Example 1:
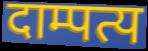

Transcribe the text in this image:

दाम्पत्य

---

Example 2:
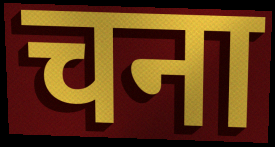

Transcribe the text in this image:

चना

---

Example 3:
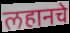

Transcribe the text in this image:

लहानचे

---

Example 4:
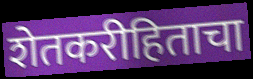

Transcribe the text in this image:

शेतकरीहिताचा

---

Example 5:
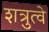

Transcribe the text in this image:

शत्रुत्वे